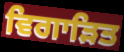
ਵਿਗਾੜਿਤ